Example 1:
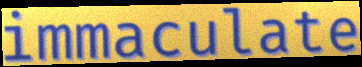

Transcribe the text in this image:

immaculate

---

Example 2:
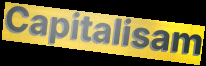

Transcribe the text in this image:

Capitalisam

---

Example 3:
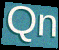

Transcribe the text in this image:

Qn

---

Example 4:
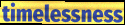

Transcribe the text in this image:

timelessness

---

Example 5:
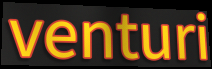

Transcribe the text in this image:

venturi